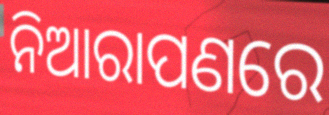
ନିଆରାପଣରେ